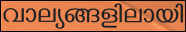
വാല്യങ്ങളിലായി